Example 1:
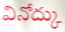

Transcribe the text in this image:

వినోద్కు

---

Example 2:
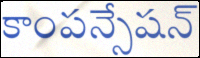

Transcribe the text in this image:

కాంపన్సేషన్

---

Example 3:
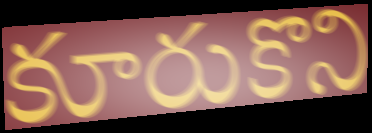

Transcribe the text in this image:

కూరుకొని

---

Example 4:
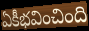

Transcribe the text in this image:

ఏకీభవించింది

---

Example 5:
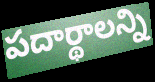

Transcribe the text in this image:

పదార్థాలన్ని